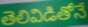
తెలివిడితోనే